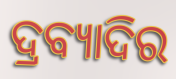
ଦ୍ରବ୍ୟାଦିର